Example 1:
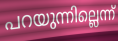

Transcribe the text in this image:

പറയുന്നില്ലെന്ന്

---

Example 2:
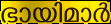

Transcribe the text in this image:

ഭായിമാർ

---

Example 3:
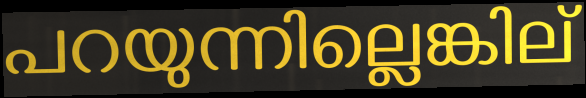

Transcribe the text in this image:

പറയുന്നില്ലെങ്കില്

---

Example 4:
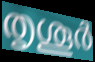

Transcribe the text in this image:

തൃശൂർ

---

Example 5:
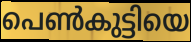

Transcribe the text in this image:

പെൺകുട്ടിയെ